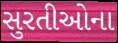
સુરતીઓના